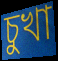
চুখা